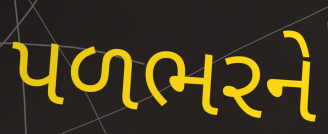
પળભરને